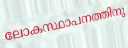
ലോകസ്ഥാപനത്തിനു